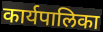
कार्यपालिका